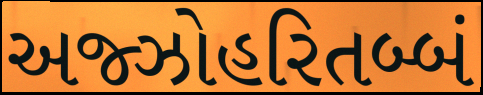
અજ્ઝોહરિતબ્બં